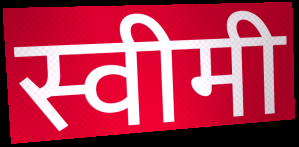
स्वीमी